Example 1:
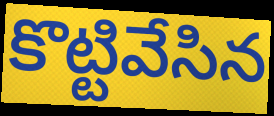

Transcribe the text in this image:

కొట్టివేసిన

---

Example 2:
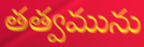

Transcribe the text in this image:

తత్వమును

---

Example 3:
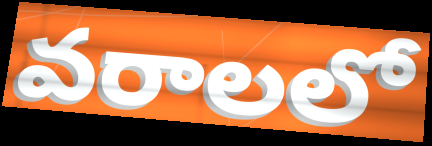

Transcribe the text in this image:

వరాలలో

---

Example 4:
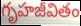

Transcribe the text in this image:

గృహజీవితం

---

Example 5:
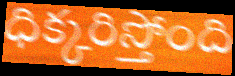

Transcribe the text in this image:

ధిక్కరిస్తోంది